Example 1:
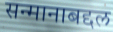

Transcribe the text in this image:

सन्मानाबद्दल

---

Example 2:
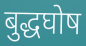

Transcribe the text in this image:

बुद्धघोष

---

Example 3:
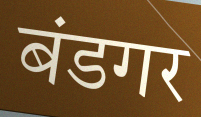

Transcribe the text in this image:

बंडगर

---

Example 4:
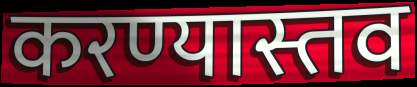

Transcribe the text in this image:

करण्यास्तव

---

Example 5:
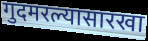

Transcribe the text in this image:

गुदमरल्यासारखा